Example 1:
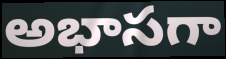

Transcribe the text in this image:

అభాసగా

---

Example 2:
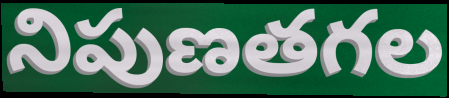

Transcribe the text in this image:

నిపుణతగల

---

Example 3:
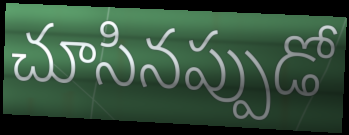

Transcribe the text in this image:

చూసినప్పుడో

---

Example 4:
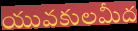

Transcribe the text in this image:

యువకులమీద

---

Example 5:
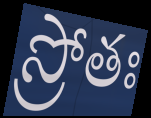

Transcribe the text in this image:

స్రోతః